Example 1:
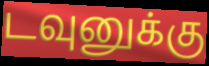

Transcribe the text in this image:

டவுனுக்கு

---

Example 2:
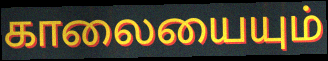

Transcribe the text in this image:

காலையையும்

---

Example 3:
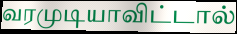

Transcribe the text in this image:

வரமுடியாவிட்டால்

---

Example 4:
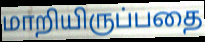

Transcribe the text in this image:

மாறியிருப்பதை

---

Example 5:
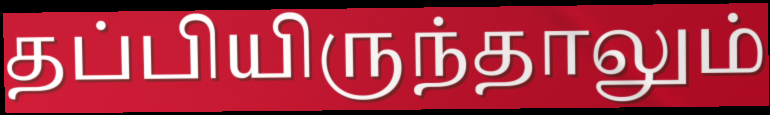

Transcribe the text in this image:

தப்பியிருந்தாலும்